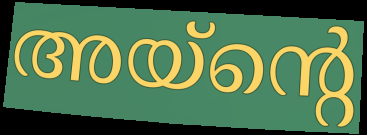
അയ്ന്റെ